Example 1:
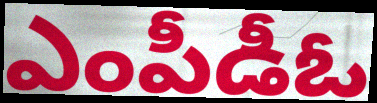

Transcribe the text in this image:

ఎంపీడీఓ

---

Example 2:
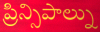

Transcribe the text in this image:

ప్రిన్సిపాల్ను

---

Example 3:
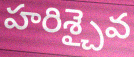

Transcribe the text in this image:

హరిశ్చైవ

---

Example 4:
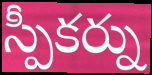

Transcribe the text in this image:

స్పీకర్ను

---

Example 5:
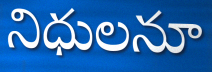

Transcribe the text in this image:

నిధులనూ